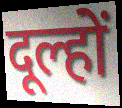
दूल्‍हों